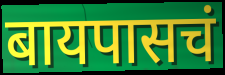
बायपासचं